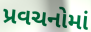
પ્રવચનોમાં